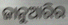
ଜାନୁଆରିର